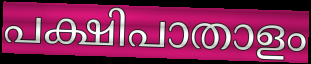
പക്ഷിപാതാളം